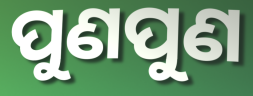
ପୁଣପୁଣ